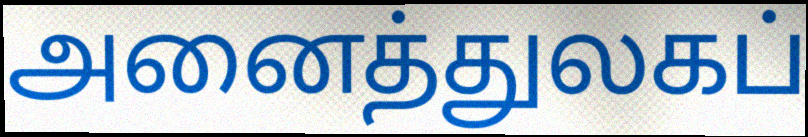
அனைத்துலகப்